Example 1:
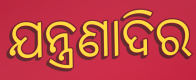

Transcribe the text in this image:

ଯନ୍ତ୍ରଣାଦିର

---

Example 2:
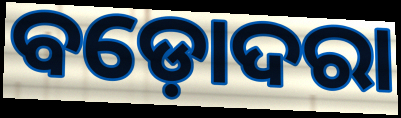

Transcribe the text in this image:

ବଡ଼ୋଦରା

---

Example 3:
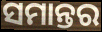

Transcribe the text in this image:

ସମାନ୍ତର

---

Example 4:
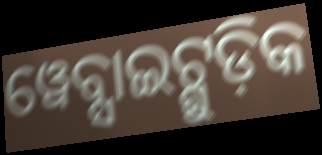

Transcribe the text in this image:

ୱେବ୍ସାଇଟ୍ଗୁଡ଼ିକ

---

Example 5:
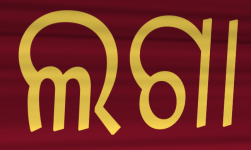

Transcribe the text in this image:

ଲଗା